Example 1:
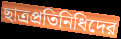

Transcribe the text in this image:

ছাত্রপ্রতিনিধিদের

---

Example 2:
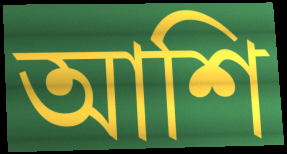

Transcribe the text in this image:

আশি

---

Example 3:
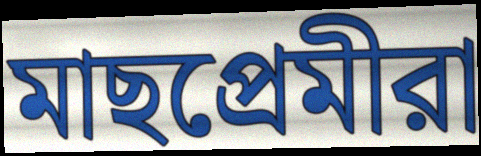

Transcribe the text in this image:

মাছপ্রেমীরা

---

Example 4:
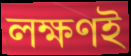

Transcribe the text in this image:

লক্ষণই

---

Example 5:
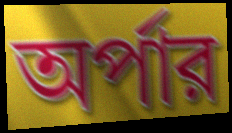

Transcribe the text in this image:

অর্পার